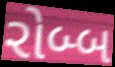
રોબ્બ